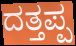
ದತ್ತಪ್ಪ